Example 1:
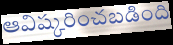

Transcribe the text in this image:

ఆవిష్కరించబడింది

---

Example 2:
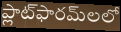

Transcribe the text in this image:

ప్లాట్‌ఫారమ్‌లలో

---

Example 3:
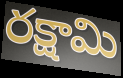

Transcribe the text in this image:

రక్షామి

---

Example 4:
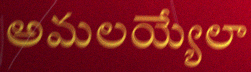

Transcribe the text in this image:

అమలయ్యేలా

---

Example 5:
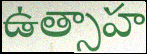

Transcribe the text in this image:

ఉత్సాహ